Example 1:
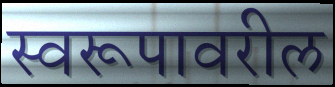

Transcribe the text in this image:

स्वरूपावरील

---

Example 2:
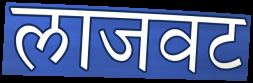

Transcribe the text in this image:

लाजवट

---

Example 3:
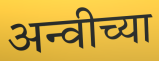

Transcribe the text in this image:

अन्वीच्या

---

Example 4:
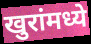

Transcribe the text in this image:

खुरांमध्ये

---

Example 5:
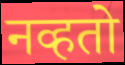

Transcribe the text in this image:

नव्हतो